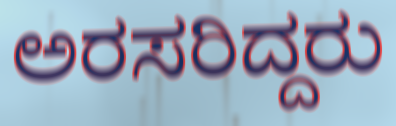
ಅರಸರಿದ್ದರು